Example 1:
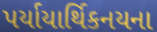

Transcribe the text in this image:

પર્યાયાર્થિકનયના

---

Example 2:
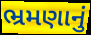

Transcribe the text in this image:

ભ્રમણાનું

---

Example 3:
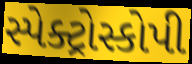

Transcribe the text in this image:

સ્પેક્ટ્રોસ્કોપી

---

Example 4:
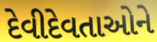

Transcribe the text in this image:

દેવીદેવતાઓને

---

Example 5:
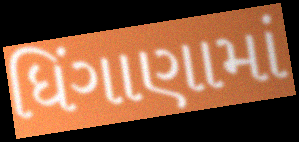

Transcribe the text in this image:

ધિંગાણામાં